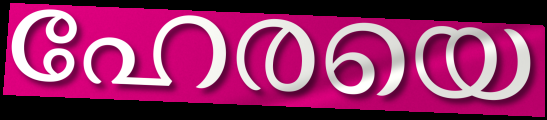
ഹേരയെ